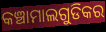
କଞ୍ଚାମାଲଗୁଡିକର